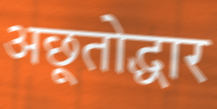
अछूतोद्धार